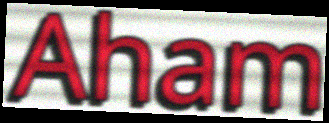
Aham